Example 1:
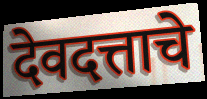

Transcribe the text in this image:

देवदत्ताचे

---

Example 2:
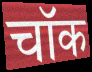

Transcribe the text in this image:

चॉक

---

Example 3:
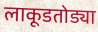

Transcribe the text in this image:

लाकूडतोड्या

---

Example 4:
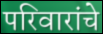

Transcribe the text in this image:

परिवारांचे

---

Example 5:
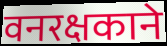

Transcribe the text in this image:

वनरक्षकाने